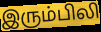
இரும்பிலி